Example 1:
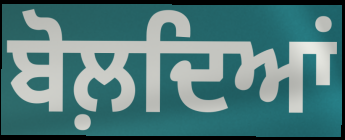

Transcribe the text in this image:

ਬੋਲ਼ਦਿਆਂ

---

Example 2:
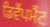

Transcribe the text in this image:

ਡਿਵੈਂਪਮੈਂਟ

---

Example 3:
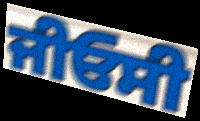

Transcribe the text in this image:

ਜੀਓਸੀ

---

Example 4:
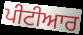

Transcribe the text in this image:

ਪੀਟੀਆਰ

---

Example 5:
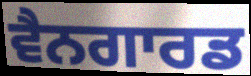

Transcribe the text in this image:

ਵੈਨਗਾਰਡ